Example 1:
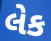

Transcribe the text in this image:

લેક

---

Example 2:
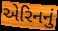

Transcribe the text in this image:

એરિનનું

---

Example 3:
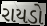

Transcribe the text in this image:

રાયડો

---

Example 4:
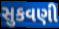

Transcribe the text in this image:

સુકવણી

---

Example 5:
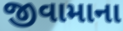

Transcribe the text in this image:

જીવામાના